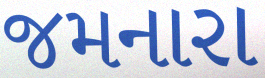
જમનારા